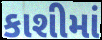
કાશીમાં